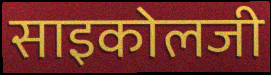
साइकोलजी